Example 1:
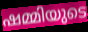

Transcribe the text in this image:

ഷമ്മിയുടെ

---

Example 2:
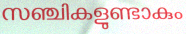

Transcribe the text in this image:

സഞ്ചികളുണ്ടാകും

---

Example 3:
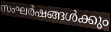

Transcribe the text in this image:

സംഘർഷങ്ങൾക്കും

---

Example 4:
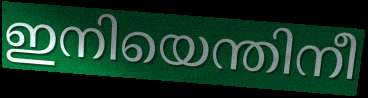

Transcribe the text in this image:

ഇനിയെന്തിനീ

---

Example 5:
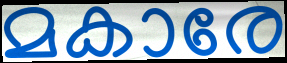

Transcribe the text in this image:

മകാരേ